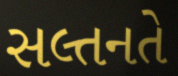
સલ્તનતે